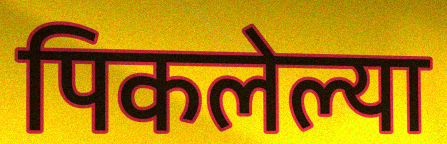
पिकलेल्या